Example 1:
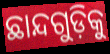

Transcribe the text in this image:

ଛାନ୍ଦଗୁଡ଼ିକୁ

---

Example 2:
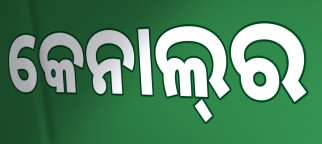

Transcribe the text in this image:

କେନାଲ୍‍ର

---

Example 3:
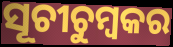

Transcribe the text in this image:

ସୂଚୀଚୁମ୍ବକର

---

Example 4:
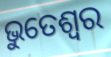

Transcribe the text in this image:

ଭୁତେଶ୍ୱର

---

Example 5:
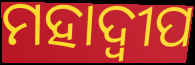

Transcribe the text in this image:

ମହାଦ୍ୱୀପ